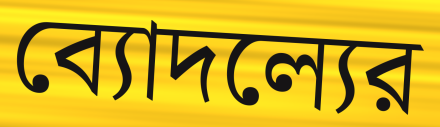
ব্যোদল্যের